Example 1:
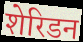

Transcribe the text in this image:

शेरिडन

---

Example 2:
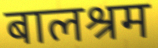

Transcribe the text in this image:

बालश्रम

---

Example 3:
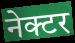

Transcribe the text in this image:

नेक्टर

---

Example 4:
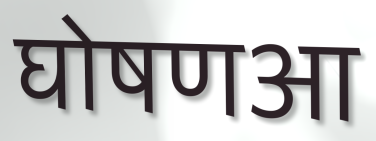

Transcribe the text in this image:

घोषणआ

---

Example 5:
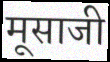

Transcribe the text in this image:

मूसाजी